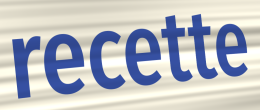
recette